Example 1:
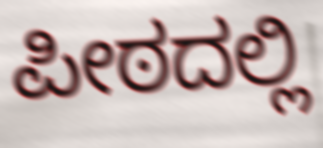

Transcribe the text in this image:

ಪೀಠದಲ್ಲಿ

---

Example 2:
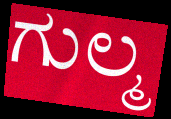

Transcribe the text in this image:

ಗುಲ್ಮ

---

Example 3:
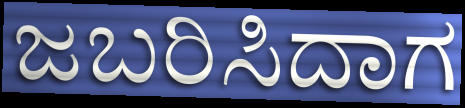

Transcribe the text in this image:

ಜಬರಿಸಿದಾಗ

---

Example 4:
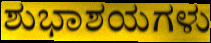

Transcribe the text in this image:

ಶುಭಾಶಯಗಳು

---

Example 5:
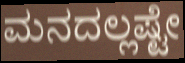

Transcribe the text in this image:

ಮನದಲ್ಲಷ್ಟೇ